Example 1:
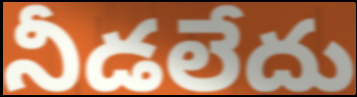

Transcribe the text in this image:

నీడలేదు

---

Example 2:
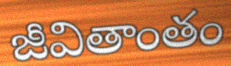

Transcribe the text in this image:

జీవితాంతం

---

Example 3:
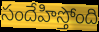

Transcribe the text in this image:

సందేహిస్తోంది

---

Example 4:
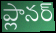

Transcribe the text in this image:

ప్లానర్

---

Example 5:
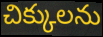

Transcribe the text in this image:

చిక్కులను